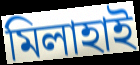
মিলাহাই